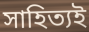
সাহিত্যই